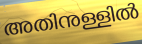
അതിനുള്ളിൽ